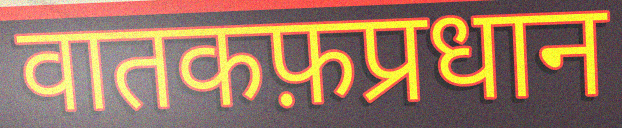
वातकफ़प्रधान